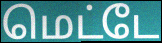
மெட்டே